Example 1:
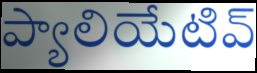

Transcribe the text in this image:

ప్యాలియేటివ్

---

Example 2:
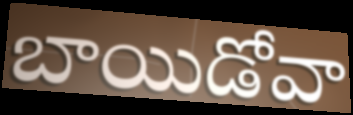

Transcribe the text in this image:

బాయిడోవా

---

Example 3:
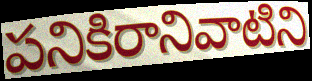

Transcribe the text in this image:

పనికిరానివాటిని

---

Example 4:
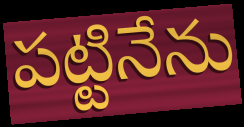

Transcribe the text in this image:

పట్టినేను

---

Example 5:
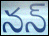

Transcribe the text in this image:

నన్